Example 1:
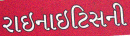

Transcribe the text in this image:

રાઇનાઇટિસની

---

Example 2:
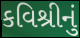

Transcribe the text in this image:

કવિશ્રીનું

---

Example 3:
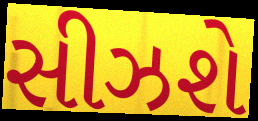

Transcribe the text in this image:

સીઝશે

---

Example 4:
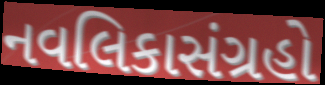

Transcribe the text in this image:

નવલિકાસંગ્રહો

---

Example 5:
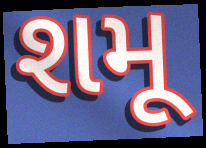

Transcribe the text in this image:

શમૂ